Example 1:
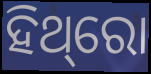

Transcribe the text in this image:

ହିଥ୍‌ରୋ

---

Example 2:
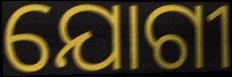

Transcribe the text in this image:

ଯୋଗୀ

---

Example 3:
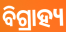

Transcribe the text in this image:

ବିଗ୍ରାହ୍ୟ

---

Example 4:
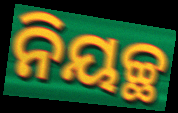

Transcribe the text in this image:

ନିୟଚ୍ଛ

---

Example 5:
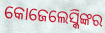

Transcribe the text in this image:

କୋଜେଲେସ୍କିଙ୍କର